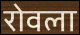
रोवला